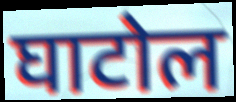
घाटोल